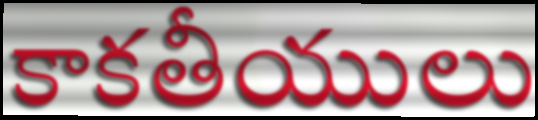
కాకతీయులు